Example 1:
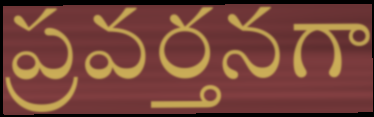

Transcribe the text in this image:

ప్రవర్తనగా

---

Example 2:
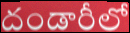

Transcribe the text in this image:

దండారీలో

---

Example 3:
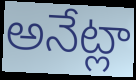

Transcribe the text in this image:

అనేట్లా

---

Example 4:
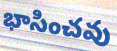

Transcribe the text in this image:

భాసించవు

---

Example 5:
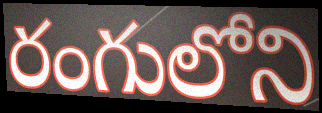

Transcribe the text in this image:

రంగులోని